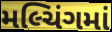
મલ્ચિંગમાં